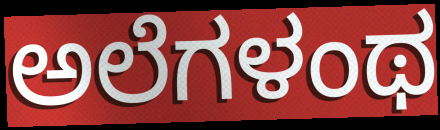
ಅಲೆಗಳಂಥ